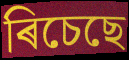
ৰিচেছে